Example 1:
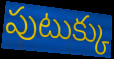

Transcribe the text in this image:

పుటుక్కు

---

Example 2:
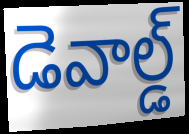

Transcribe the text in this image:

డెవాల్డ్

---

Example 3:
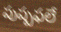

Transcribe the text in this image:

పుష్పఫలే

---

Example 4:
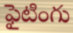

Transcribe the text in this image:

ఫైటింగు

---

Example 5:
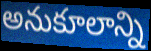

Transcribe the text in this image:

అనుకూలాన్ని